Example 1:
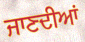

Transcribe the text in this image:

ਜਾਣਦੀਆਂ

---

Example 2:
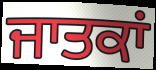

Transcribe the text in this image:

ਜਾਤਕਾਂ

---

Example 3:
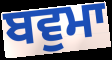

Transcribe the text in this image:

ਬਵੁਮਾ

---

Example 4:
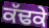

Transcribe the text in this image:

ਕੱਢਕੇ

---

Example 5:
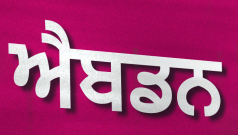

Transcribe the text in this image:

ਐਬਡਨ